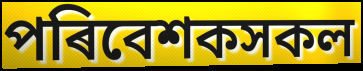
পৰিবেশকসকল